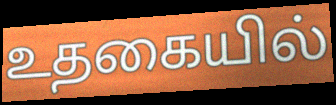
உதகையில்